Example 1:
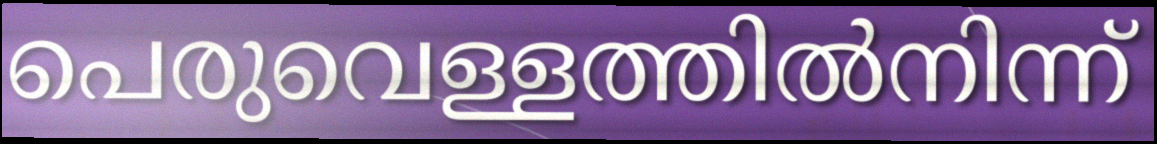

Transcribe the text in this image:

പെരുവെള്ളത്തിൽനിന്ന്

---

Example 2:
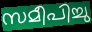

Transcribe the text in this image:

സമീപിച്ചു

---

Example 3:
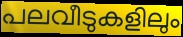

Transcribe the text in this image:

പലവീടുകളിലും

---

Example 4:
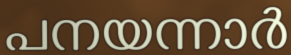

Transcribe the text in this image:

പനയന്നാർ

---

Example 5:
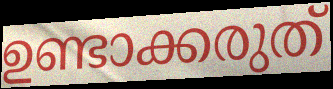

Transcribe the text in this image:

ഉണ്ടാക്കരുത്